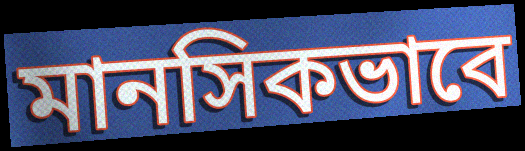
মানসিকভাবে